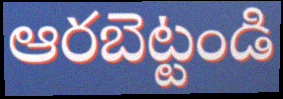
ఆరబెట్టండి